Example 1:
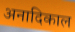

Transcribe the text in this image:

अनादिकाल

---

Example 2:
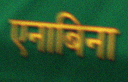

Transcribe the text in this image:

एनाबिना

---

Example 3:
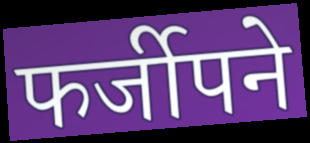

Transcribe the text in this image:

फर्जीपने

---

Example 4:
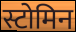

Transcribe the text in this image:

स्टोमिन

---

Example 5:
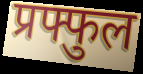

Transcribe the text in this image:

प्रफ्फुल